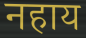
नहाय